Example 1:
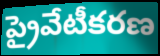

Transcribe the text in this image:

ప్రైవేటీకరణ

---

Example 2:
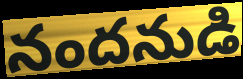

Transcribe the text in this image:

నందనుడి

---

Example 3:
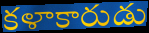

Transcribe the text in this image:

కళాకారుడు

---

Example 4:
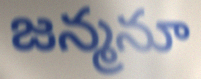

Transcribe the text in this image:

జన్మనూ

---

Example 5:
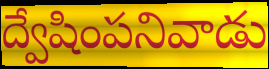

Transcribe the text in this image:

ద్వేషింపనివాడు